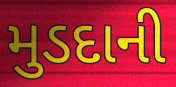
મુડદાની